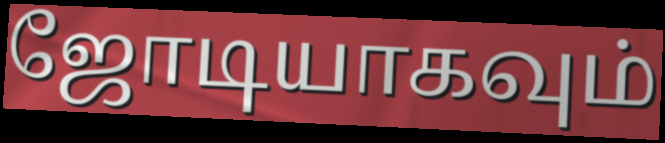
ஜோடியாகவும்